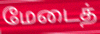
மேடைத்